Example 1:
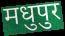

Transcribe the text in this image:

मधुपुर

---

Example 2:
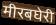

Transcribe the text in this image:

मीरबघेरी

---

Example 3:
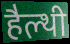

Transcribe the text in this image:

हैल्थी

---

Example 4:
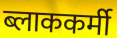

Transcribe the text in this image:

ब्लाककर्मी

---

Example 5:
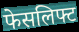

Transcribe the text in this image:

फेसलिफ्ट